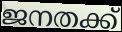
ജനതക്ക്